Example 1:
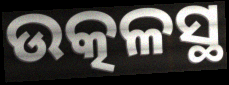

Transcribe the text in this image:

ଉତ୍କଳସ୍ଥ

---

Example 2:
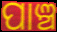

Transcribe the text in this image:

ପାଞ୍ଚ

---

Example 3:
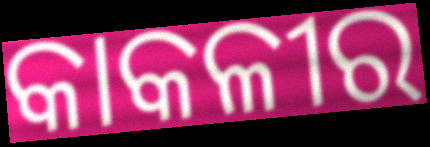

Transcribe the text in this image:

କାକଳୀର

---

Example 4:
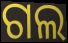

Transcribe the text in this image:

ଗଲ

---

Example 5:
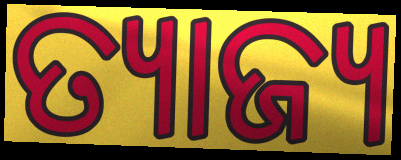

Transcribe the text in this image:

ତ୍ୟାଜ୍ୟ